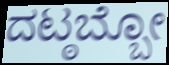
ದಟ್ಠಬ್ಬೋ